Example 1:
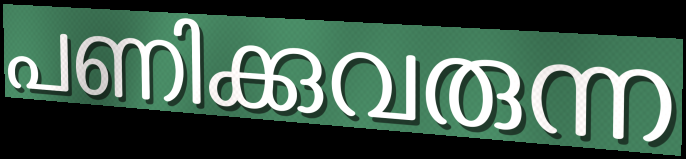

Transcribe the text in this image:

പണിക്കുവരുന്ന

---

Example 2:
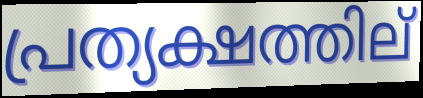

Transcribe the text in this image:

പ്രത്യക്ഷത്തില്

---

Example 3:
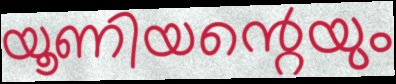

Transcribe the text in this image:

യൂണിയന്റെയും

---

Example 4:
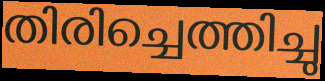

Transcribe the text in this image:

തിരിച്ചെത്തിച്ചു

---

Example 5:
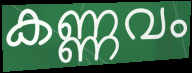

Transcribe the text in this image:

കണ്ണവം